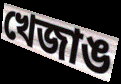
খেজাঙ